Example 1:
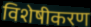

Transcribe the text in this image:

विशेषीकरण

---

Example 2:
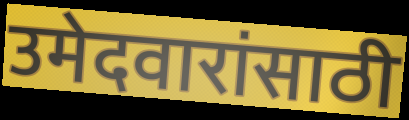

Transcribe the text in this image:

उमेदवारांसाठी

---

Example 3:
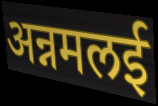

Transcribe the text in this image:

अन्नमलई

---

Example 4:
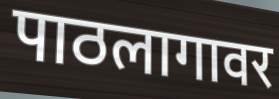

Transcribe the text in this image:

पाठलागावर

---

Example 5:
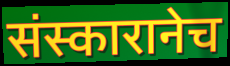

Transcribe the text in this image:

संस्कारानेच